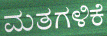
ಮತಗಳಿಕೆ